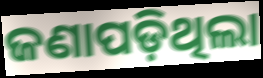
ଜଣାପଡ଼ିଥିଲା